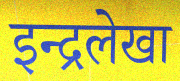
इन्द्रलेखा